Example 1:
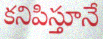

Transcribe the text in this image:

కనిపిస్తూనే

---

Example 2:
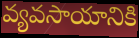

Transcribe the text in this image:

వ్యవసాయానికి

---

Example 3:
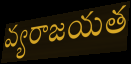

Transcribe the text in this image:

వ్యరాజయత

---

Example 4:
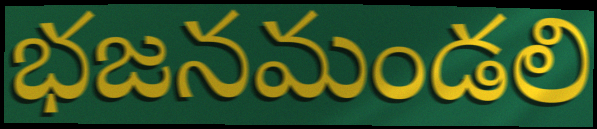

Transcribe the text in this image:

భజనమండలి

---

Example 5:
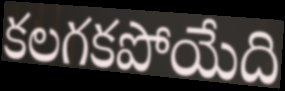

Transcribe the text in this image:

కలగకపోయేది